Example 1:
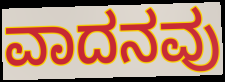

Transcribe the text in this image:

ವಾದನವು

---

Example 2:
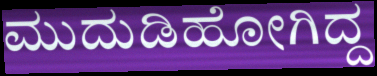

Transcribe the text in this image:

ಮುದುಡಿಹೋಗಿದ್ದ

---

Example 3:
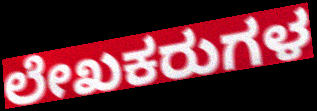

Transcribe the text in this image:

ಲೇಖಕರುಗಳ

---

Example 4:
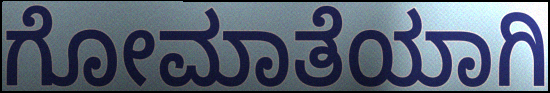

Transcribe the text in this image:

ಗೋಮಾತೆಯಾಗಿ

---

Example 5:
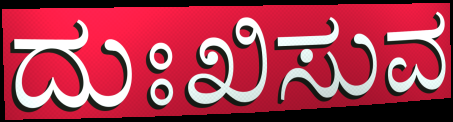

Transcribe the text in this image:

ದುಃಖಿಸುವ